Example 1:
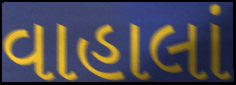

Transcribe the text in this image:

વાહાલાં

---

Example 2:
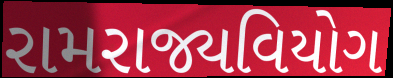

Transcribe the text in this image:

રામરાજ્યવિયોગ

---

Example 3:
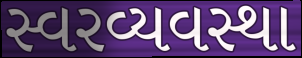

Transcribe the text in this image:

સ્વરવ્યવસ્થા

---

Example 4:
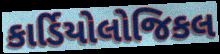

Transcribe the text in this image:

કાર્ડિયોલોજિકલ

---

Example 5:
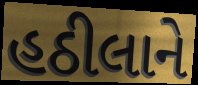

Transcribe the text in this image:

હઠીલાને